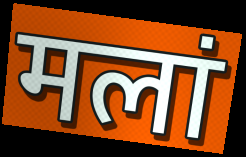
मलां